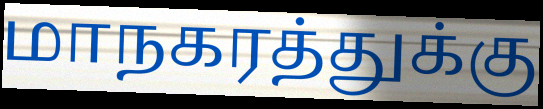
மாநகரத்துக்கு